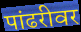
पांढरीवर